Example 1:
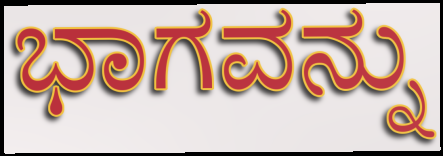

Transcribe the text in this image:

ಭಾಗವನ್ನು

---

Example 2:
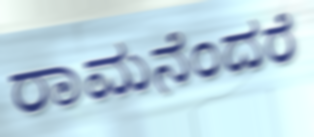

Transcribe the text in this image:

ರಾಮನೆಂದರೆ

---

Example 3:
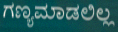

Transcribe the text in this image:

ಗಣ್ಯಮಾಡಲಿಲ್ಲ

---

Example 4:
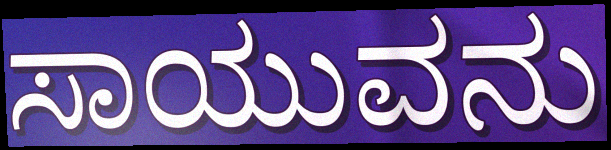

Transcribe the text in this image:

ಸಾಯುವನು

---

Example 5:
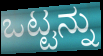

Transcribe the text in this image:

ಒಟ್ಟನ್ನು